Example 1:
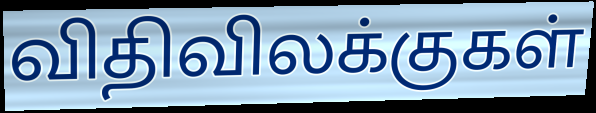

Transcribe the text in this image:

விதிவிலக்குகள்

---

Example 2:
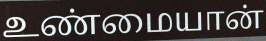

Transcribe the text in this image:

உண்மையான்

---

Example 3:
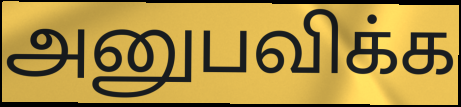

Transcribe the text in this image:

அனுபவிக்க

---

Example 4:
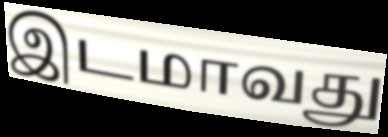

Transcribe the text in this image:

இடமாவது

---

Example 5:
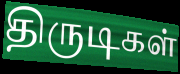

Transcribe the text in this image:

திருடிகள்